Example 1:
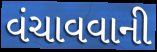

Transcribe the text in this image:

વંચાવવાની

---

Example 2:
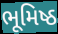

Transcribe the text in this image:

ભૂમિષ્ઠ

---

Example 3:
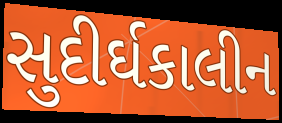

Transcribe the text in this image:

સુદીર્ઘકાલીન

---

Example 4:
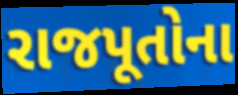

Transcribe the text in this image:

રાજપૂતોના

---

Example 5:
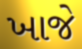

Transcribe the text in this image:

ખાજે